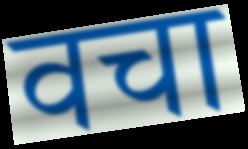
वचा